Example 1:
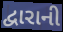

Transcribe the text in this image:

દ્વારાની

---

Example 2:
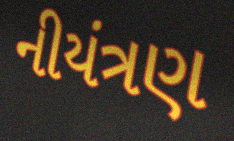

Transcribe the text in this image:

નીયંત્રણ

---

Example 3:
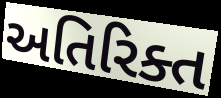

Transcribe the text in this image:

અતિરિક્ત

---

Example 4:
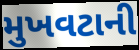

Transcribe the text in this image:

મુખવટાની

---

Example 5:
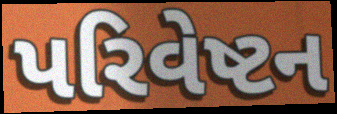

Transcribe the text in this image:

પરિવેષ્ટન